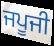
ਜਪੂਜੀ